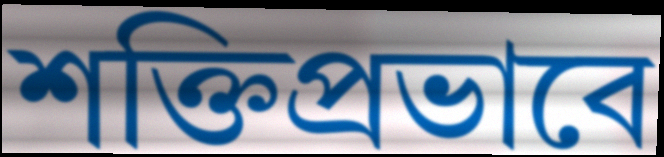
শক্তিপ্রভাবে